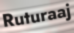
Ruturaaj